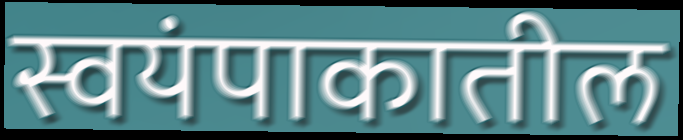
स्वयंपाकातील